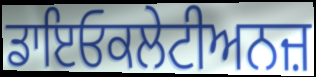
ਡਾਇਓਕਲੇਟੀਅਨਜ਼